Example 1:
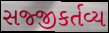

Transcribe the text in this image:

સજ્જીકર્તવ્ય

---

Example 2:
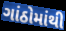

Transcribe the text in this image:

ગાંઠોમાંથી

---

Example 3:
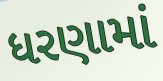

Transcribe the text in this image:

ધરણામાં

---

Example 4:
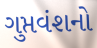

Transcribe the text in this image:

ગુપ્તવંશનો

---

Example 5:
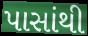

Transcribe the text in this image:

પાસાંથી